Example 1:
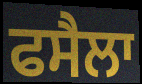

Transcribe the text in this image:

ਫਸੈਲਾ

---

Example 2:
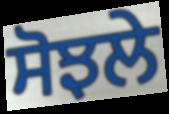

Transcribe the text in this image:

ਸੋਝਲੇ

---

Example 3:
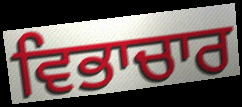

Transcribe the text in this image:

ਵਿਭਾਚਾਰ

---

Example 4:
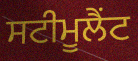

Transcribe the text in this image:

ਸਟੀਮੂਲੈਂਟ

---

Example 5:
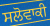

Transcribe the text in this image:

ਸਲੋਵਾਕੀ